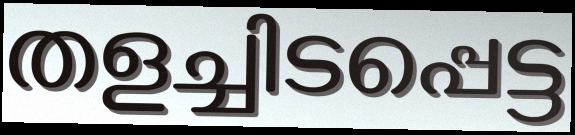
തളച്ചിടപ്പെട്ട